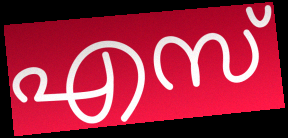
എസ്